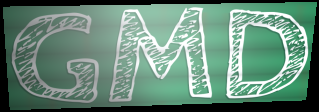
GMD